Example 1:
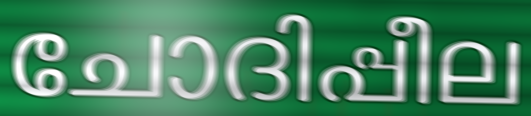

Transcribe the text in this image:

ചോദിപ്പീല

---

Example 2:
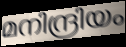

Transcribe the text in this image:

മനിന്ദ്രിയം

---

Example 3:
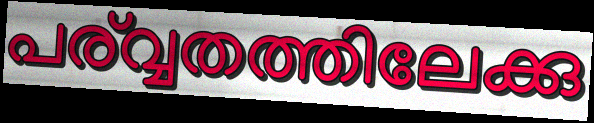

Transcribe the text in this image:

പര്വ്വതത്തിലേക്കു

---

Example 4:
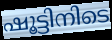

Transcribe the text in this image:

ഷൂട്ടിനിടെ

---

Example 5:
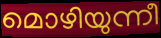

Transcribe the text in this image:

മൊഴിയുന്നീ